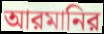
আরমানির